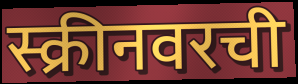
स्क्रीनवरची